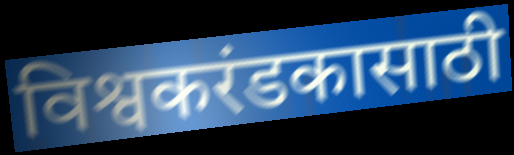
विश्वकरंडकासाठी